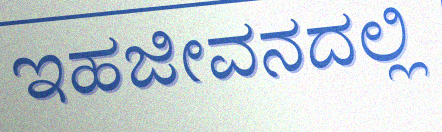
ಇಹಜೀವನದಲ್ಲಿ